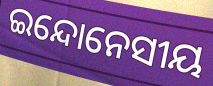
ଇନ୍ଦୋନେସୀୟ